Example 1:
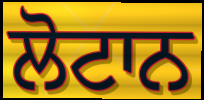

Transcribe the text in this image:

ਲੋਟਾਨ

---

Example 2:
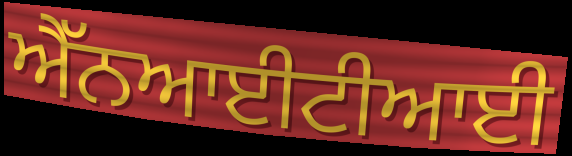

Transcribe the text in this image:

ਐੱਨਆਈਟੀਆਈ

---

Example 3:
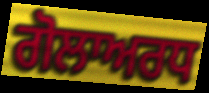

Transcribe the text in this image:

ਗੋਲਾਅਰਧ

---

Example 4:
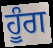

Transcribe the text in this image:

ਹੂੰਗ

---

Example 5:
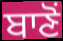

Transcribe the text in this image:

ਬਾਣੋਂ